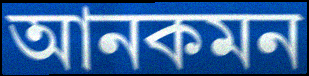
আনকমন